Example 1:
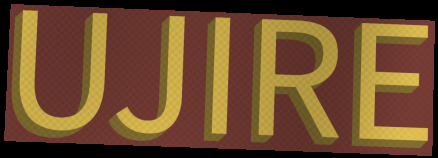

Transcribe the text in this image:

UJIRE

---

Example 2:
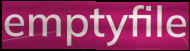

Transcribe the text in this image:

emptyfile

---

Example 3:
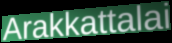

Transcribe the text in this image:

Arakkattalai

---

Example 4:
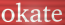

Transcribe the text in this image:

okate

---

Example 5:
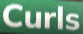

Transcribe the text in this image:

Curls